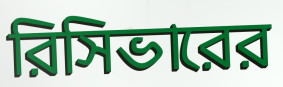
রিসিভারের